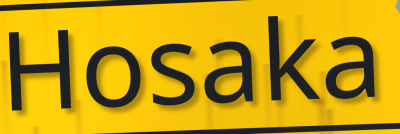
Hosaka